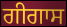
ਗੀਗਾਸ